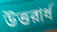
উত্তরার্ধ